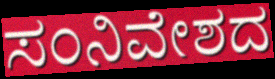
ಸಂನಿವೇಶದ